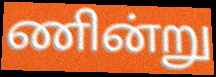
ணின்று